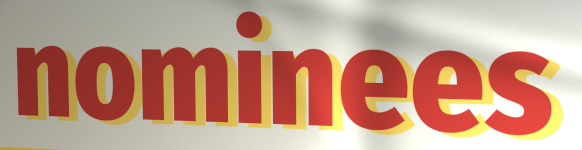
nominees